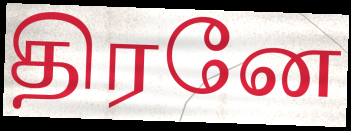
திரனே